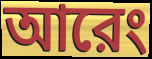
আরেং